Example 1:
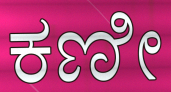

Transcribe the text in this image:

ಕಣೀ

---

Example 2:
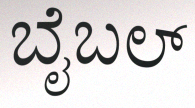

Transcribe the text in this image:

ಬೈಬಲ್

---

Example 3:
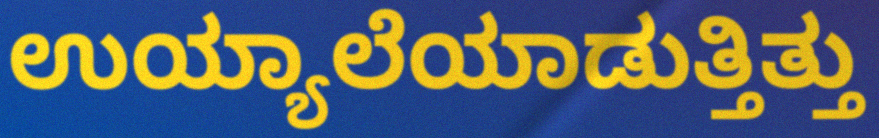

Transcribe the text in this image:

ಉಯ್ಯಾಲೆಯಾಡುತ್ತಿತ್ತು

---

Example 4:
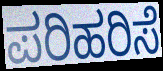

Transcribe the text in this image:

ಪರಿಹರಿಸೆ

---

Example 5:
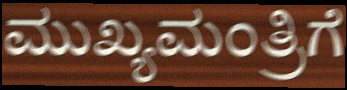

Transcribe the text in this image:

ಮುಖ್ಯಮಂತ್ರಿಗೆ